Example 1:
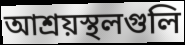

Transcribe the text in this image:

আশ্রয়স্থলগুলি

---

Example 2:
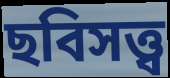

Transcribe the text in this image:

ছবিসত্ত্ব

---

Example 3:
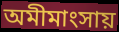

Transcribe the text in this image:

অমীমাংসায়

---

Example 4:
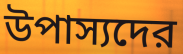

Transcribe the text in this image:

উপাস্যদের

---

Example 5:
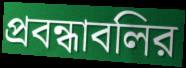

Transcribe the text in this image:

প্রবন্ধাবলির